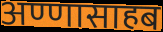
अण्णासाहब